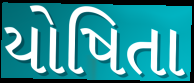
યોષિતા